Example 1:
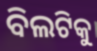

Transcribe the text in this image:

ବିଲଟିକୁ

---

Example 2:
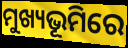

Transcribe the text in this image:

ମୁଖ୍ୟଭୂମିରେ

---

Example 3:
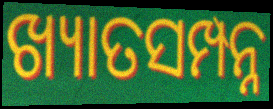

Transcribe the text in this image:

ଖ୍ୟାତସମ୍ପନ୍ନ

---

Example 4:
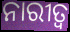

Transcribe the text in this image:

ନାରୀତ୍ୱ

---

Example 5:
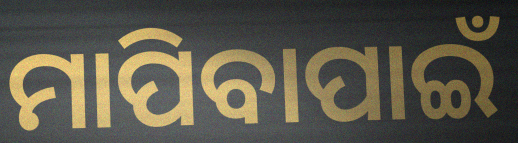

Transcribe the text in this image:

ମାପିବାପାଇଁ